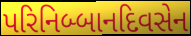
પરિનિબ્બાનદિવસેન